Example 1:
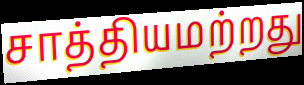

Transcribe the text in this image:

சாத்தியமற்றது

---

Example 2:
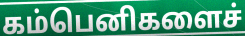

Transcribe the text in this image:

கம்பெனிகளைச்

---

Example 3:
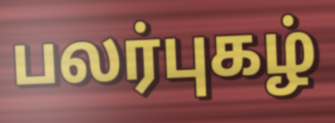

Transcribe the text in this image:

பலர்புகழ்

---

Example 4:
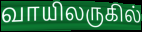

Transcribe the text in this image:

வாயிலருகில்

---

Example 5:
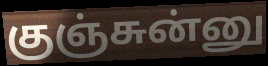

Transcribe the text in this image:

குஞ்சுன்னு